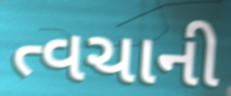
ત્વચાની